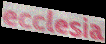
ecclesia